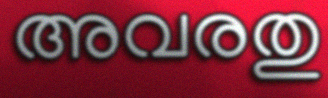
അവരതു